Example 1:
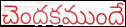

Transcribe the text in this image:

చెందకముందే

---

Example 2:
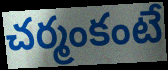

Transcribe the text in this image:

చర్మంకంటే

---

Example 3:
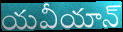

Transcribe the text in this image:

యవీయాన్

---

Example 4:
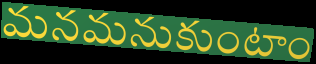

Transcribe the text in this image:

మనమనుకుంటాం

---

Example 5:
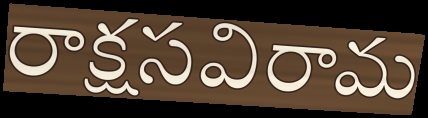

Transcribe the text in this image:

రాక్షసవిరామ